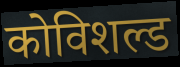
कोविशल्ड